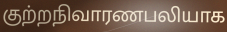
குற்றநிவாரணபலியாக